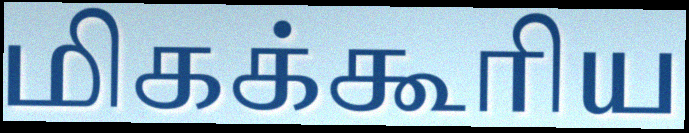
மிகக்கூரிய